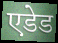
एडेड